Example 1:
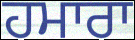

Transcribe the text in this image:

ਹਮਾਰਾ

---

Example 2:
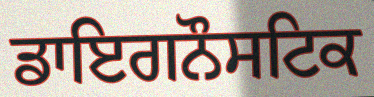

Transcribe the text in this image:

ਡਾਇਗਨੌਸਟਿਕ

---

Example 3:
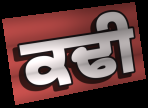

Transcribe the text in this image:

ਕਢੀ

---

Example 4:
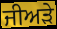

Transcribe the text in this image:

ਜੀਅੜੇ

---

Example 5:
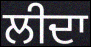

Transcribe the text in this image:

ਲੀਦਾ